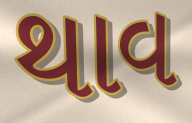
થાવ